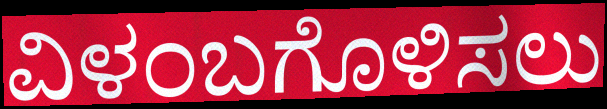
ವಿಳಂಬಗೊಳಿಸಲು